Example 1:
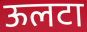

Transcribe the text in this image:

ऊलटा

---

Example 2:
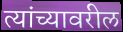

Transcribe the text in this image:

त्यांच्यावरील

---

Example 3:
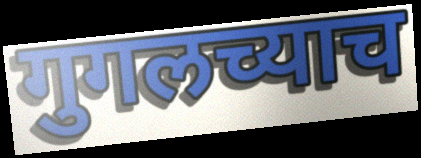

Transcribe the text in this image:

गुगलच्याच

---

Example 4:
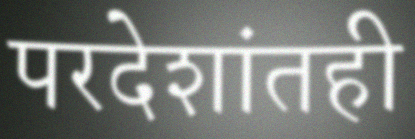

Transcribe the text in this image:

परदेशांतही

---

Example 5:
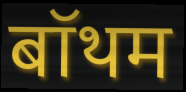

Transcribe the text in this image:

बॉथम